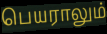
பெயராலும்